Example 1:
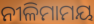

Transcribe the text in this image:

ନୀଳିମାମୟ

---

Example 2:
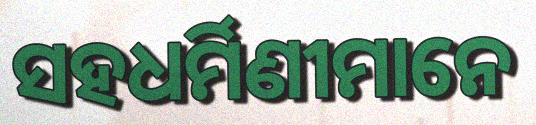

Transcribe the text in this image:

ସହଧର୍ମିଣୀମାନେ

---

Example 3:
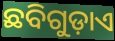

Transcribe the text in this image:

ଛବିଗୁଡ଼ାଏ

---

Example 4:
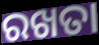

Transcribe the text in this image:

ରଖତା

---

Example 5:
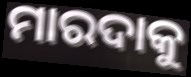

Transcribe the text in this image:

ମାରଦାକୁ